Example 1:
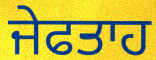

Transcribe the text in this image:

ਜੇਫਤਾਹ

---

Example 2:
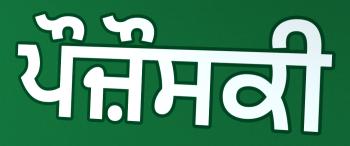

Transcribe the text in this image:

ਪੌਜ਼ੌਸਕੀ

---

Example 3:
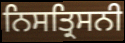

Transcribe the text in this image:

ਨਿਸਤ੍ਰਿਸਨੀ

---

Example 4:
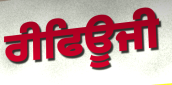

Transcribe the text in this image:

ਰੀਫਿਊਜੀ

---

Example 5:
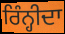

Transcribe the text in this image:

ਰਿੰਨ੍ਹੀਦਾ